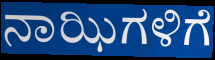
ನಾಝಿಗಳಿಗೆ